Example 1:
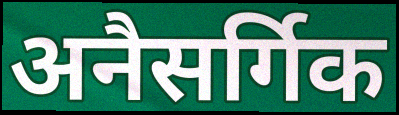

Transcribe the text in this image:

अनैसर्गिक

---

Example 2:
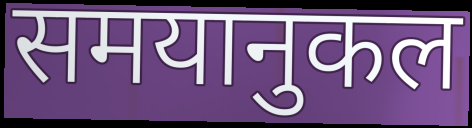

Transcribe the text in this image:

समयानुकल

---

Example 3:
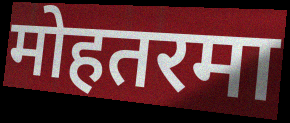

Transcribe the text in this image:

मोहतरमा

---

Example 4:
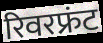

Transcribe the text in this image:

रिवरफ्रंट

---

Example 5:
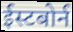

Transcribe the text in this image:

ईस्टबोर्न